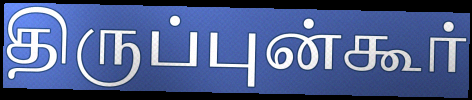
திருப்புன்கூர்